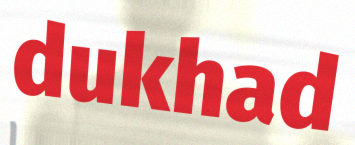
dukhad